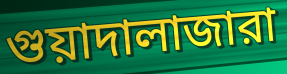
গুয়াদালাজারা